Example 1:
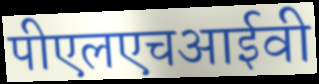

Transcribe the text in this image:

पीएलएचआईवी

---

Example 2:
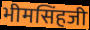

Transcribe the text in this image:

भीमसिंहजी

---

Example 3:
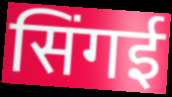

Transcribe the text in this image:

सिंगई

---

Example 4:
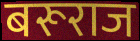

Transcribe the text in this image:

बरूराज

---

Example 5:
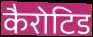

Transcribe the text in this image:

कैरोटिड